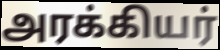
அரக்கியர்